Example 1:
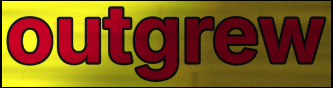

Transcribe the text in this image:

outgrew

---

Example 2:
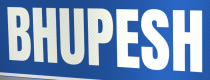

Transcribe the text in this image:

BHUPESH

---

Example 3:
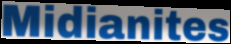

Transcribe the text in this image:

Midianites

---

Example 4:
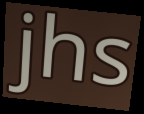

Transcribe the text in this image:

jhs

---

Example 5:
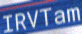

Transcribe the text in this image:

IRVTam